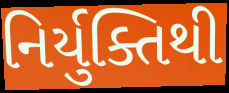
નિર્યુક્તિથી